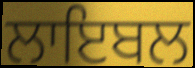
ਲਾਇਬਲ